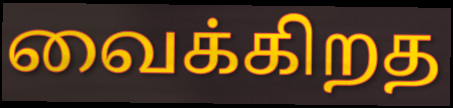
வைக்கிறத